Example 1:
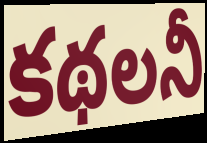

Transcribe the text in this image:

కథలనీ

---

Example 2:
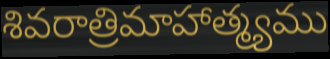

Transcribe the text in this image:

శివరాత్రిమాహాత్మ్యము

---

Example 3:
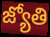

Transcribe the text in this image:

జ్యోతి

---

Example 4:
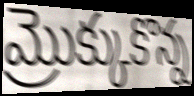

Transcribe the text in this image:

మ్రొక్కుకొన్న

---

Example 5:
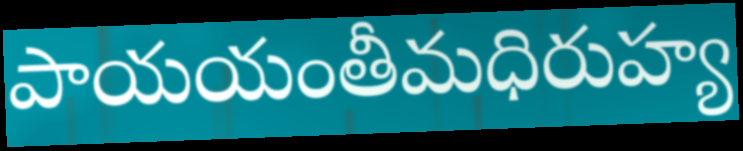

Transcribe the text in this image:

పాయయంతీమధిరుహ్య